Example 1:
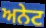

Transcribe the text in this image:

ਅਨੇਟ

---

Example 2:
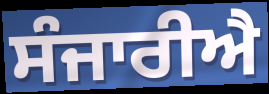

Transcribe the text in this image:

ਸੰਜਾਰੀਐ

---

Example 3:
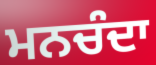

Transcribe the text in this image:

ਮਨਚੰਦਾ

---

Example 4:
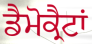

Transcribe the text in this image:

ਡੈਮੋਕ੍ਰੈਟਾਂ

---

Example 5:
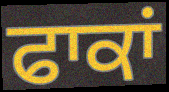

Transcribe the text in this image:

ਫਾਕਾਂ